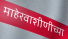
माहेरवाशीणीच्या